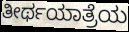
ತೀರ್ಥಯಾತ್ರೆಯ